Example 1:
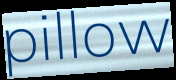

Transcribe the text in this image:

pillow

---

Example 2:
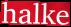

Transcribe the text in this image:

halke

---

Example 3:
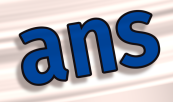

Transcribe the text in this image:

ans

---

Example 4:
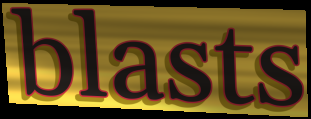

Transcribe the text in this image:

blasts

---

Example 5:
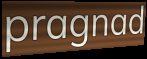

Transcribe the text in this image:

pragnad